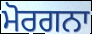
ਮੋਰਗਨਾ